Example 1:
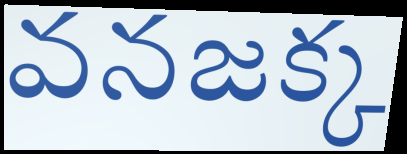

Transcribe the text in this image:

వనజక్క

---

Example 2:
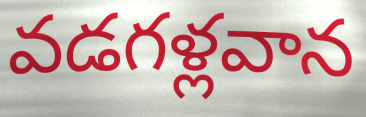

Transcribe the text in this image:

వడగళ్లవాన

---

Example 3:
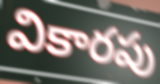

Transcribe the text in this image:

వికారపు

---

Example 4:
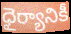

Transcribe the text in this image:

ధైర్యానికీ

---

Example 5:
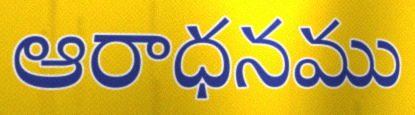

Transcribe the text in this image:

ఆరాధనము